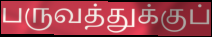
பருவத்துக்குப்